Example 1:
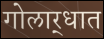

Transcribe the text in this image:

गोलार्धात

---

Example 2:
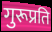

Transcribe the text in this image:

गुरूप्रति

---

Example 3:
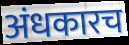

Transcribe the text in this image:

अंधकारच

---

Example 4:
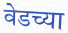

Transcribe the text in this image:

वेडच्या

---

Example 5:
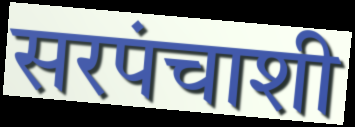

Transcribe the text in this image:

सरपंचाशी